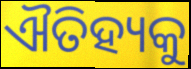
ଐତିହ୍ୟକୁ